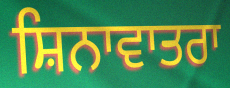
ਸ਼ਿਨਾਵਾਤਰਾ